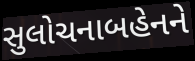
સુલોચનાબહેનને